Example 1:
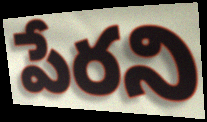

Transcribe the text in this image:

పేరని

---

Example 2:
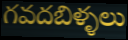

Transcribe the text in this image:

గవదబిళ్ళలు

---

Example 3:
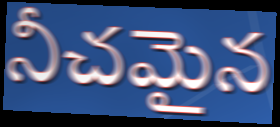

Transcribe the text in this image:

నీచమైన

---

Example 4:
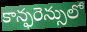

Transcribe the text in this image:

కాన్ఫరెన్సులో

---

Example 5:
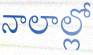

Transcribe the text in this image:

నాలాల్లో